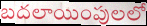
బదలాయింపులలో